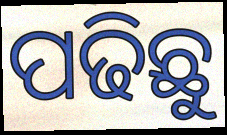
ପଢିଛୁ